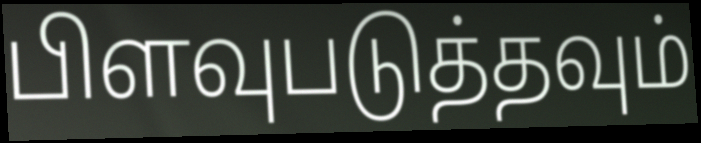
பிளவுபடுத்தவும்